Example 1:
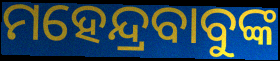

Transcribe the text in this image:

ମହେନ୍ଦ୍ରବାବୁଙ୍କ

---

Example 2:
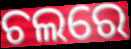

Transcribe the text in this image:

ଚଲରେ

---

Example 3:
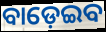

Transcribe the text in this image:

ବାଡ଼େଇବ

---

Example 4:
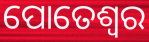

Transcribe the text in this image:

ପୋତେଶ୍ବର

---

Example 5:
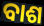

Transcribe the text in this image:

ବାଶ